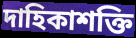
দাহিকাশক্তি